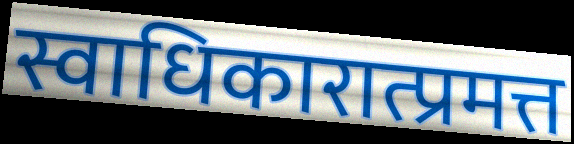
स्वाधिकारात्प्रमत्त